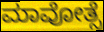
ಮಾವೋತ್ಸೆ